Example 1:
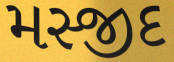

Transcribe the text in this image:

મસ્જીદ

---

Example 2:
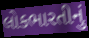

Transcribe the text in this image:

લોકભારતીનું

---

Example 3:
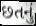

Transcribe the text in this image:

છતનું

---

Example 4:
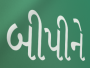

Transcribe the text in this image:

બીપીને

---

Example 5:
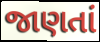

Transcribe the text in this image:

જાણતાં